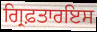
ਗ੍ਰਿਫ਼ਤਾਰਇਸ